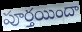
పూర్తయిందా